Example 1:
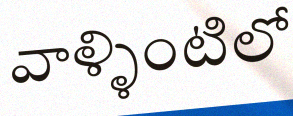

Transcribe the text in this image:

వాళ్ళింటిలో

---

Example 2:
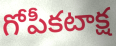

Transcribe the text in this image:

గోపీకటాక్ష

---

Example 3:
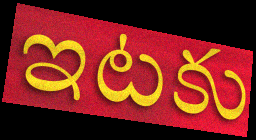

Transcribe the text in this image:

ఇటకు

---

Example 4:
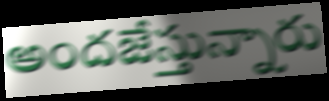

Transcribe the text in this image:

అందజేస్తున్నారు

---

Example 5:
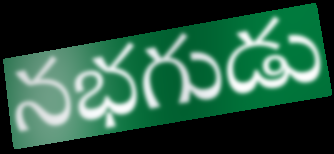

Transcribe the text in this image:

నభగుడు